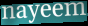
nayeem